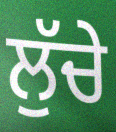
ਲੁੱਚੇ